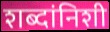
शब्दांनिशी